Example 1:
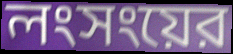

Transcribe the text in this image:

লংসংয়ের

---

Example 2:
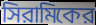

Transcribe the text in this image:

সিরামিকের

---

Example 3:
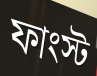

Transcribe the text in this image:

ফাংস্ট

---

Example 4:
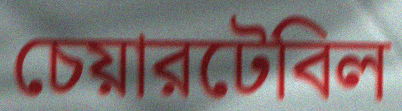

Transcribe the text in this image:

চেয়ারটেবিল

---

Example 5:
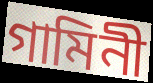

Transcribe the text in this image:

গামিনী